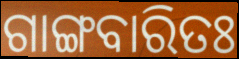
ଗାଙ୍ଗବାରିତଃ